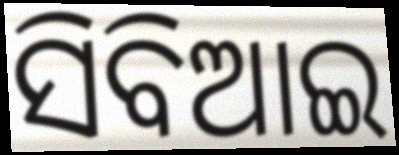
ସିବିଆଇ